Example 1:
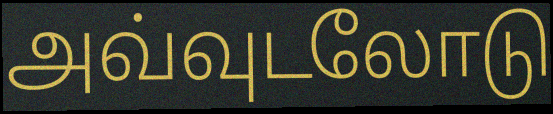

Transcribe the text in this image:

அவ்வுடலோடு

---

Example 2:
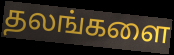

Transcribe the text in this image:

தலங்களை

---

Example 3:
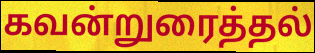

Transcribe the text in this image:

கவன்றுரைத்தல்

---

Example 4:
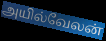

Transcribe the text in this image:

அயில்வேலன்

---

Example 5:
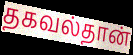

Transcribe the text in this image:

தகவல்தான்